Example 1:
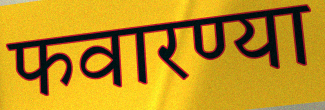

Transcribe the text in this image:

फवारण्या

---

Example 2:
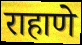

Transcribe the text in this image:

राहाणे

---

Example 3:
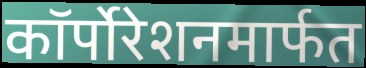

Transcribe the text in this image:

कॉर्पोरेशनमार्फत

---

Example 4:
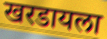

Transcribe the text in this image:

खरडायला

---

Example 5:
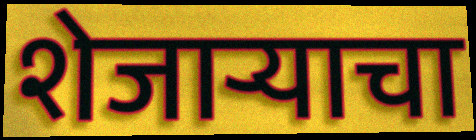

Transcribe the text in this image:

शेजार्‍याचा